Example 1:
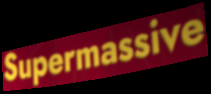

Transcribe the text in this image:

Supermassive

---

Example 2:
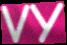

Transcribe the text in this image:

VY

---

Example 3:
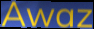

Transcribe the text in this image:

Awaz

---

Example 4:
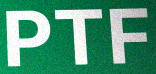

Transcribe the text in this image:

PTF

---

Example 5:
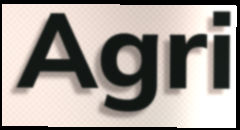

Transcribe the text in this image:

Agri